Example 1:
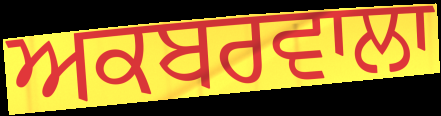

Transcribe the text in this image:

ਅਕਬਰਵਾਲਾ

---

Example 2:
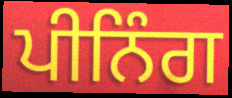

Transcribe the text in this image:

ਪੀਨਿੰਗ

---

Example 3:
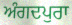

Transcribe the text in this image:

ਅੰਗਦਪੁਰਾ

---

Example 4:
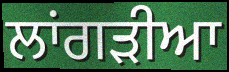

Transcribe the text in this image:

ਲਾਂਗੜੀਆ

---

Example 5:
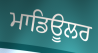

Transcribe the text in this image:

ਮਾਡਿਊਲਰ